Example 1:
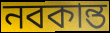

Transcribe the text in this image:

নবকান্ত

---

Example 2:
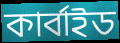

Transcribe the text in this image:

কার্বাইড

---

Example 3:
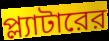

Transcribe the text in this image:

প্ল্যাটারের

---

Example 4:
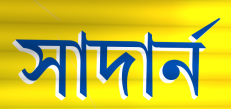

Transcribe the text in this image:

সাদার্ন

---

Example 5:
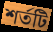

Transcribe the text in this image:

শর্তটি